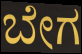
ಬೇಗ